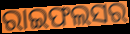
ରାଇଫଲସର